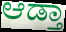
ಆಡ್ತಾ